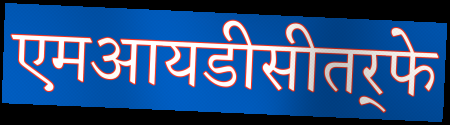
एमआयडीसीतर्फे